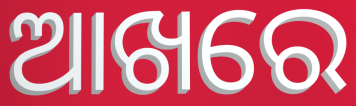
ଆଖରେ